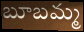
బూబమ్మ